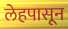
लेहपासून